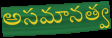
అసమానత్వ